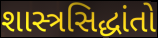
શાસ્ત્રસિદ્ધાંતો